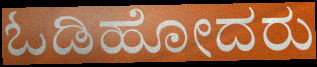
ಓಡಿಹೋದರು